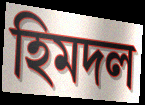
হিমদল